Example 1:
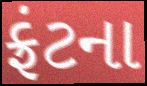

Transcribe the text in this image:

ફ્રંટના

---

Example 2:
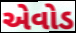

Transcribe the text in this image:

એવોડ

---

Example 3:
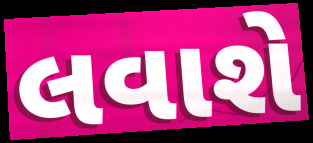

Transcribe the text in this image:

લવાશે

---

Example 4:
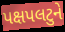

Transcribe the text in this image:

પક્ષપલટુને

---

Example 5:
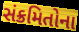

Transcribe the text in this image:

સંક્રમિતોના